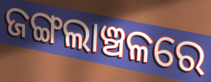
ଜଙ୍ଗଲାଞ୍ଚଳରେ